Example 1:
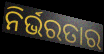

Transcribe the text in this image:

ନିର୍ଭରତାର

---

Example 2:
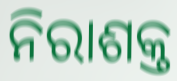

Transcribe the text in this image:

ନିରାଶକ୍ତ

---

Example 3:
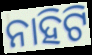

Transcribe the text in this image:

ନାହିଟି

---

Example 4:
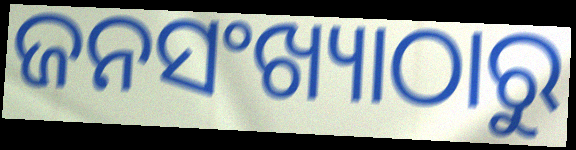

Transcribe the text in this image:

ଜନସଂଖ୍ୟାଠାରୁ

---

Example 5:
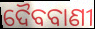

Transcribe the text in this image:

ଦୈବବାଣୀ